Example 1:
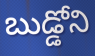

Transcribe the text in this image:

బుడ్డోని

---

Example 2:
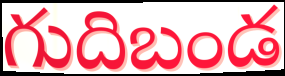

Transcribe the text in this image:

గుదిబండ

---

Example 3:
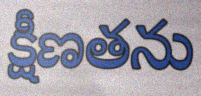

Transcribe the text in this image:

క్షీణతను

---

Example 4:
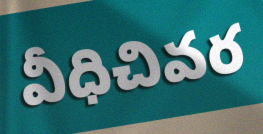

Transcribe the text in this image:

వీధిచివర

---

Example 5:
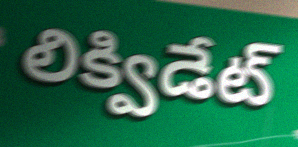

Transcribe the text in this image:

లిక్విడేట్